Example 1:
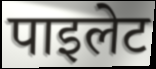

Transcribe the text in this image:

पाइलेट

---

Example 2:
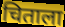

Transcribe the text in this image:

चिताला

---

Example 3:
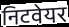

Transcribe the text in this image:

निटवेयर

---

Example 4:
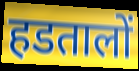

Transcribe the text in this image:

हडतालों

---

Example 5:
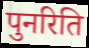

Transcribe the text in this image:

पुनरिति